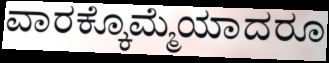
ವಾರಕ್ಕೊಮ್ಮೆಯಾದರೂ